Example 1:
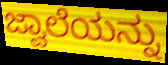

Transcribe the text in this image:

ಜ್ವಾಲೆಯನ್ನು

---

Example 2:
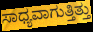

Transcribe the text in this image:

ಸಾಧ್ಯವಾಗುತ್ತಿತ್ತು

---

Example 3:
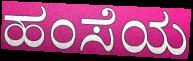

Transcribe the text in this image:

ಹಂಸೆಯ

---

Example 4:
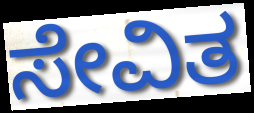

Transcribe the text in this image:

ಸೇವಿತ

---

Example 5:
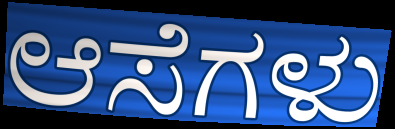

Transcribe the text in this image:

ಆಸೆಗಳು